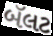
બૅલટ